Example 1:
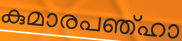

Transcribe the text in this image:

കുമാരപഞ്ഹാ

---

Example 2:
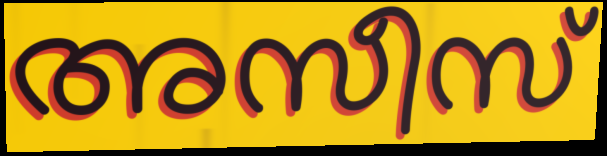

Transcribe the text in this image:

അസീസ്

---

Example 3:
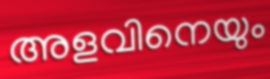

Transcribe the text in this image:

അളവിനെയും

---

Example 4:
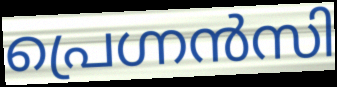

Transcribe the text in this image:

പ്രെഗ്നൻസി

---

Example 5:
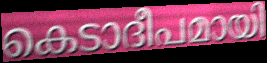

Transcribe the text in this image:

കെടാദീപമായി